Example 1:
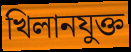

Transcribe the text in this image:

খিলানযুক্ত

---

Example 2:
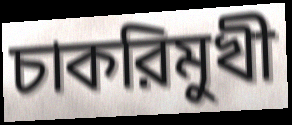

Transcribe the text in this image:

চাকরিমুখী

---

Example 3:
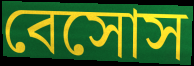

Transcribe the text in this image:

বেসোস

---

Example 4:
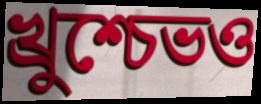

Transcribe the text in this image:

খ্রুশ্চেভও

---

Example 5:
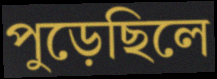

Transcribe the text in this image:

পুড়েছিলে